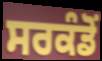
ਸਰਕੰਡੋਂ